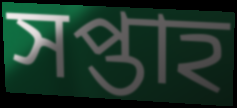
সপ্তাহ